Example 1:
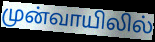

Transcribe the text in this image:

முன்வாயிலில்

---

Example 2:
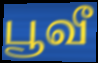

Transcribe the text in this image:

பூவீ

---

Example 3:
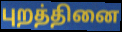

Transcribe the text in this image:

புறத்தினை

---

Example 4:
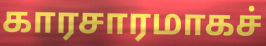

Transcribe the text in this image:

காரசாரமாகச்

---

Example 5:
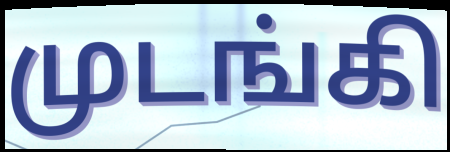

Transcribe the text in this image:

முடங்கி